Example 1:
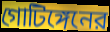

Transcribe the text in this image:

গোটিঙ্গেনের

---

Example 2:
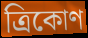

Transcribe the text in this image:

ত্রিকোণ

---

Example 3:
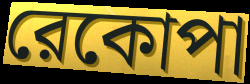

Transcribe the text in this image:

রেকোপা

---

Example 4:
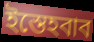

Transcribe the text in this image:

ইস্তেহবাব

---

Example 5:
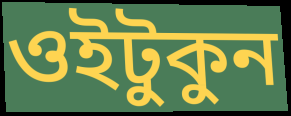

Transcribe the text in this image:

ওইটুকুন